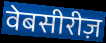
वेबसीरीज़